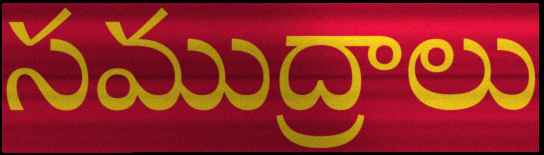
సముద్రాలు